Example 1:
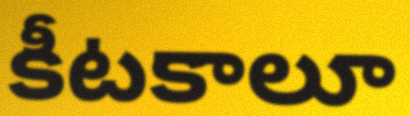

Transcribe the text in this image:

కీటకాలూ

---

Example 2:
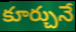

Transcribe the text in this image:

కూర్చునే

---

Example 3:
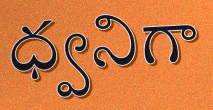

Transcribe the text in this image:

ధ్వనిగా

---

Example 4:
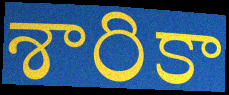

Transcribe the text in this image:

శారికా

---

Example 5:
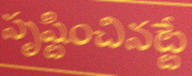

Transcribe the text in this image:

సృష్టించినట్టే